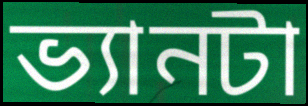
ভ্যানটা